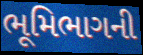
ભૂમિભાગની